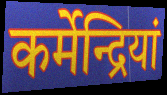
कर्मेन्द्रियां